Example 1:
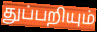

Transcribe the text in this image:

துப்பறியும்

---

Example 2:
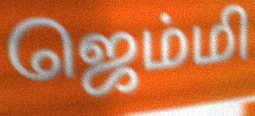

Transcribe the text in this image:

ஜெம்மி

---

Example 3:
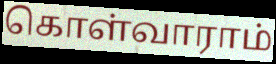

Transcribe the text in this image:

கொள்வாராம்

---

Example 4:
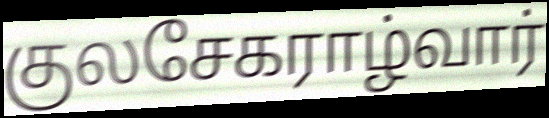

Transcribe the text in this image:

குலசேகராழ்வார்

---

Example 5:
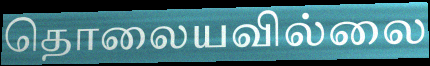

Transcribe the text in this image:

தொலையவில்லை